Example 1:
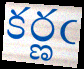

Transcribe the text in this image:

కర్ణఁ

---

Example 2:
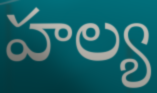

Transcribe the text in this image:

హల్య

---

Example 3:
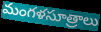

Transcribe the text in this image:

మంగళసూత్రాలు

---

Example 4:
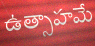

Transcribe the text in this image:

ఉత్సాహమే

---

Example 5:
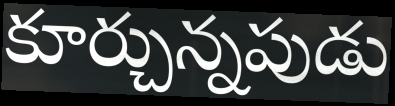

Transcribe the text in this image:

కూర్చున్నపుడు